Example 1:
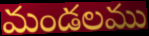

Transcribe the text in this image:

మండలము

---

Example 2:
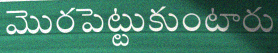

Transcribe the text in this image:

మొరపెట్టుకుంటారు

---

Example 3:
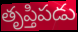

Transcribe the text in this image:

తృప్తిపడు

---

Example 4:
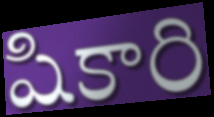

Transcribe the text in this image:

షికారి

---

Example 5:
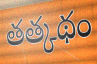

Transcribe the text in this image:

తత్కథం